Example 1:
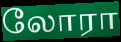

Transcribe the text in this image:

லோரா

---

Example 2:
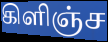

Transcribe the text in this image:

கிளிஞ்ச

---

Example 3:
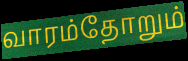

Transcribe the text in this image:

வாரம்தோறும்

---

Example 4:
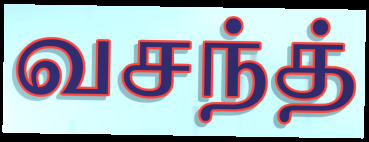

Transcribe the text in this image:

வசந்த்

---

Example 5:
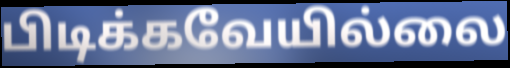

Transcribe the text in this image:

பிடிக்கவேயில்லை